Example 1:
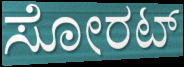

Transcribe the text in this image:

ಸೋರಟ್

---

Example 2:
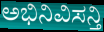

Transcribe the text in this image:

ಅಭಿನಿವಿಸನ್ತಿ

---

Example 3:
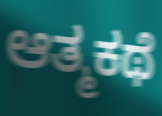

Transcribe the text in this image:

ಆತ್ಮಕಥೆ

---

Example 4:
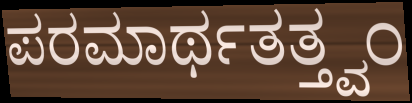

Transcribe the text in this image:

ಪರಮಾರ್ಥತತ್ತ್ವಂ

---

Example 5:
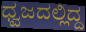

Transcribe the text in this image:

ಧ್ವಜದಲ್ಲಿದ್ದ